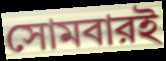
সোমবারই